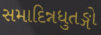
સમાદિન્નધુતઙ્ગો